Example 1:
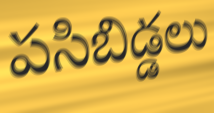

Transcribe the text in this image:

పసిబిడ్డలు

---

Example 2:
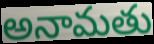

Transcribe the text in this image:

అనామతు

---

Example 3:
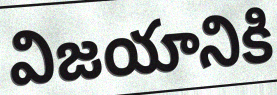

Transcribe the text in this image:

విజయానికి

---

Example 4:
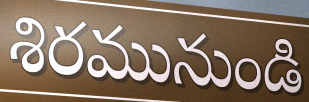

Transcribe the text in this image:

శిరమునుండి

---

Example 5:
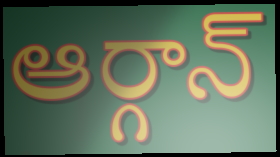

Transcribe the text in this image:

ఆర్గాన్